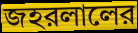
জহরলালের